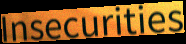
Insecurities